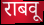
राबवू